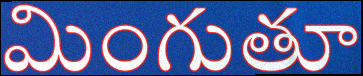
మింగుతూ